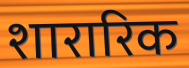
शारारिक